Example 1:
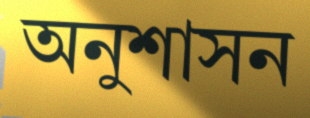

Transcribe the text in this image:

অনুশাসন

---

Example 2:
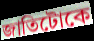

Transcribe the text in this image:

জাতিটোকে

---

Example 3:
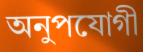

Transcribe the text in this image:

অনুপযোগী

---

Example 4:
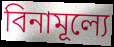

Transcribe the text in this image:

বিনামূল্যে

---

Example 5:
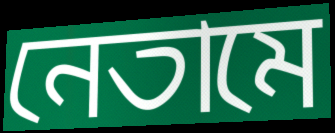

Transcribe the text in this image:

নেতামে